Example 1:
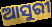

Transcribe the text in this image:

ଆସୁରୀ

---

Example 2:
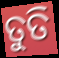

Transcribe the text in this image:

ତୁତି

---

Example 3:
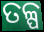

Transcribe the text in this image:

ତଳ୍ପ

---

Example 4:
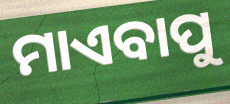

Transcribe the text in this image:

ମାଏବାପୁ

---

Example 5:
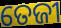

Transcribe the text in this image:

ତେଜୀ